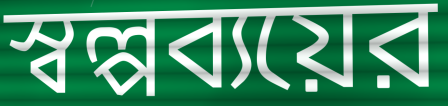
স্বল্পব্যয়ের